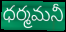
ధర్మమనీ